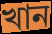
খান